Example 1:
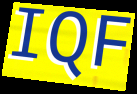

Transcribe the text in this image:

IQF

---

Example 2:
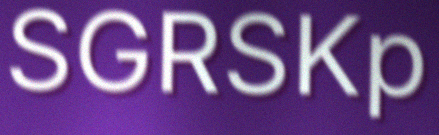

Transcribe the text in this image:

SGRSKp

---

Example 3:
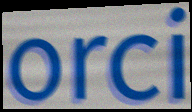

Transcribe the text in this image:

orci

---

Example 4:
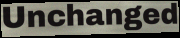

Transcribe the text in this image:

Unchanged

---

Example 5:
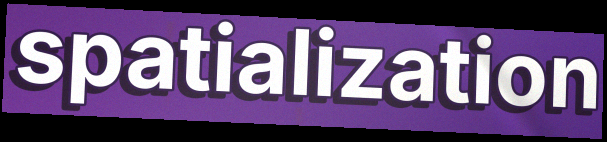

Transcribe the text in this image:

spatialization